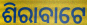
ଶିରାବାଟେ